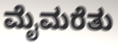
ಮೈಮರೆತು